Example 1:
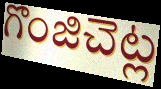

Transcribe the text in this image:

గొంజిచెట్ల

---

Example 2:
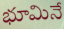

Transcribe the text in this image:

భూమినే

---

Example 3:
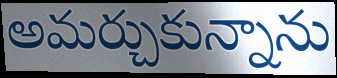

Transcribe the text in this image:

అమర్చుకున్నాను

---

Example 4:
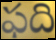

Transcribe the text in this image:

ఫది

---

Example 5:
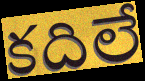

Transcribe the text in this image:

కదిలే